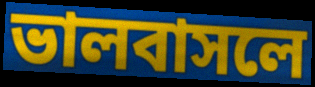
ভালবাসলে